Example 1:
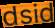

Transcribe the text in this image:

dsid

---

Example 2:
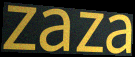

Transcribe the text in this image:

zaza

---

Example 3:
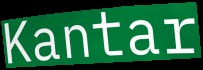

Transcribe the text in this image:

Kantar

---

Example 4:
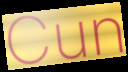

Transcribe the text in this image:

Cun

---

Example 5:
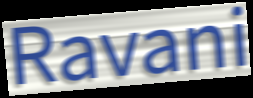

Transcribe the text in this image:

Ravani